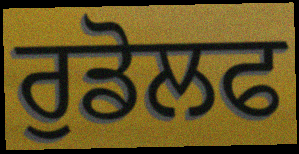
ਰੁਡੋਲਫ